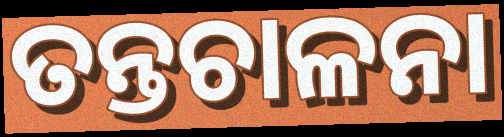
ତନ୍ତଚାଳନା